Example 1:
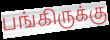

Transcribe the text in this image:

பங்கிருக்கு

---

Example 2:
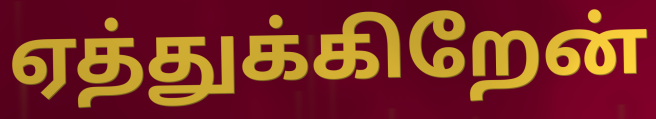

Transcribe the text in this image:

ஏத்துக்கிறேன்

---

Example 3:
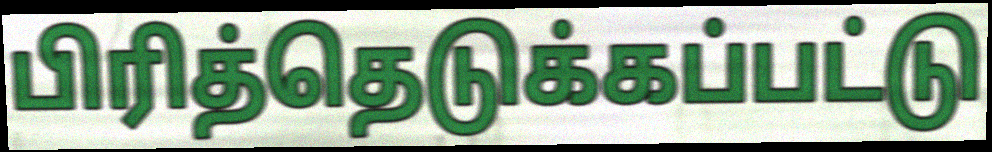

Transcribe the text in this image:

பிரித்தெடுக்கப்பட்டு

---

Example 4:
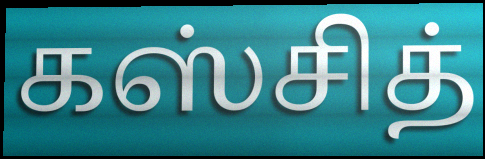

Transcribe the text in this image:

கஸ்சித்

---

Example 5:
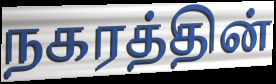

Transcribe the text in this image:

நகரத்தின்